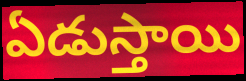
ఏడుస్తాయి